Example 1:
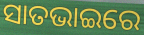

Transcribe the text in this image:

ସାତଭାଇରେ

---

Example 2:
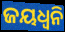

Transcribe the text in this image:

ଜୟଧ୍ୱନି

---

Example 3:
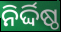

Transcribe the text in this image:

ନିର୍ଦ୍ଦିଷ୍ଠ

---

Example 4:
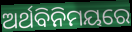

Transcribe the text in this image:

ଅର୍ଥବିନିମୟରେ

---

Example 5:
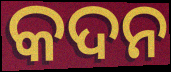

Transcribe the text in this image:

କଦନ